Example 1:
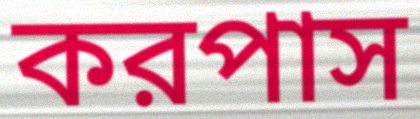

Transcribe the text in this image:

করপাস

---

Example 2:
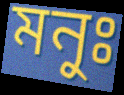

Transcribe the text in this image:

মনুঃ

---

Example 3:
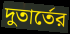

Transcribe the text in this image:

দুতার্তের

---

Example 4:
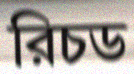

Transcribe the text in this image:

রিচড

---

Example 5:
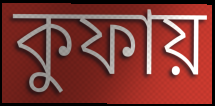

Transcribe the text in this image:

কুফায়